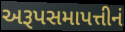
અરૂપસમાપત્તીનં